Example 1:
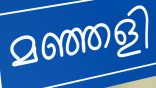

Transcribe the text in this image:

മഞ്ഞളി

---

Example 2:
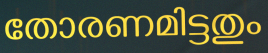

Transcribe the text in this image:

തോരണമിട്ടതും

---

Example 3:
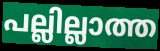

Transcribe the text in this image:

പല്ലില്ലാത്ത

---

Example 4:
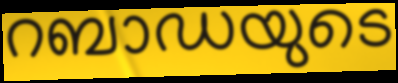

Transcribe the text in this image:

റബാഡയുടെ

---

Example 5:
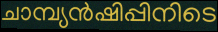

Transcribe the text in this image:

ചാമ്പ്യൻഷിപ്പിനിടെ